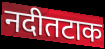
नदीतटाक